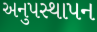
અનુપસ્થાપન